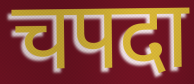
चपदा